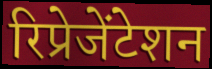
रिप्रेजेंटेशन